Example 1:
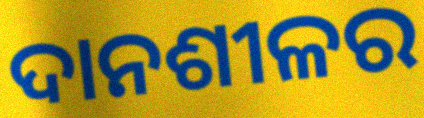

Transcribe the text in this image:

ଦାନଶୀଳର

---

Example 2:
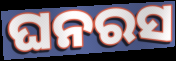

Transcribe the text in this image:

ଘନରସ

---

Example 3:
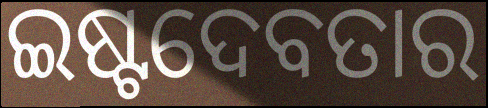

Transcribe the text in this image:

ଇଷ୍ଟଦେବତାର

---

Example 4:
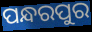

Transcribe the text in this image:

ପନ୍ଧରପୁର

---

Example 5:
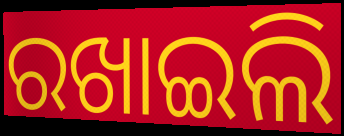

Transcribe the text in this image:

ରଖାଇଲି